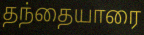
தந்தையாரை